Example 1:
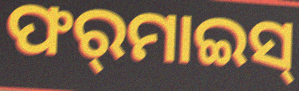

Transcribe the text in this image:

ଫର୍‌ମାଇସ୍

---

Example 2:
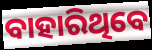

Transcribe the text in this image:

ବାହାରିଥିବେ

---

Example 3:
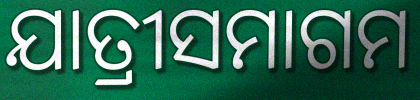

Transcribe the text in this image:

ଯାତ୍ରୀସମାଗମ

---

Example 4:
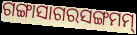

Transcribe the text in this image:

ଗଙ୍ଗାସାଗରସଙ୍ଗମମ୍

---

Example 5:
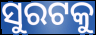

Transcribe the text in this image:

ସୁରଟକୁ